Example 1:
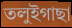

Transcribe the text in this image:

তলুইগাছা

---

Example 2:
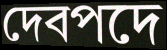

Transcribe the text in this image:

দেবপদে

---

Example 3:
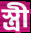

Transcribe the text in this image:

স্ত্রী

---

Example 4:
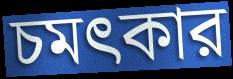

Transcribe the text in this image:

চমৎকার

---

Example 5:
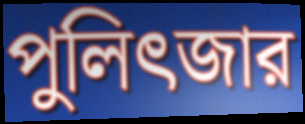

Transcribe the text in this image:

পুলিৎজার